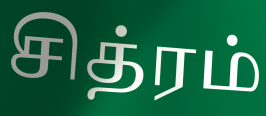
சித்ரம்